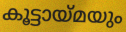
കൂട്ടായ്മയും